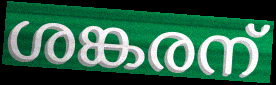
ശങ്കരന്